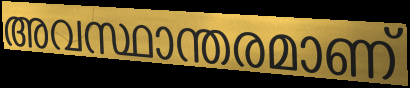
അവസ്ഥാന്തരമാണ്